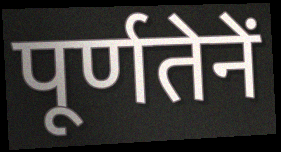
पूर्णतेनें